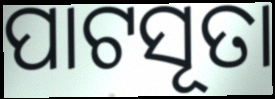
ପାଟସୂତା